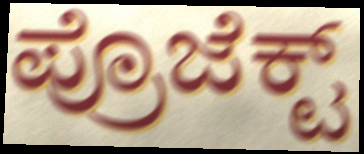
ಪ್ರೊಜೆಕ್ಟ್